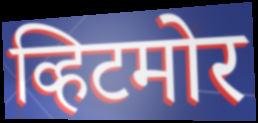
व्हिटमोर